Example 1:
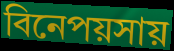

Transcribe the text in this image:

বিনেপয়সায়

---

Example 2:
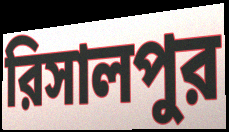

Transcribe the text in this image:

রিসালপুর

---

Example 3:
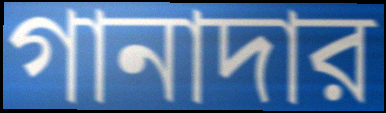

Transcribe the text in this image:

গানাদার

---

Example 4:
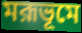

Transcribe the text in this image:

মরূভূমে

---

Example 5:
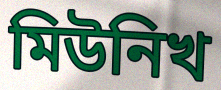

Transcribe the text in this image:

মিউনিখ